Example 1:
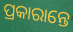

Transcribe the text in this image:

ପ୍ରକାରାନ୍ତେ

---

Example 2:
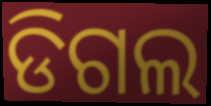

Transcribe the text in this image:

ଡିଗଲ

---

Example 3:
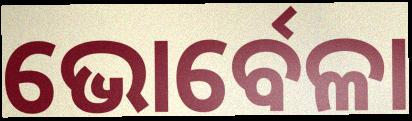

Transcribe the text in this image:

ଭୋର୍ବେଳା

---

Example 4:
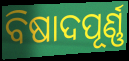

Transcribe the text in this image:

ବିଷାଦପୂର୍ଣ୍ଣ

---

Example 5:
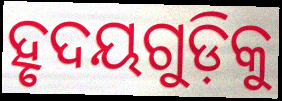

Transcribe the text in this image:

ହୃଦୟଗୁଡ଼ିକୁ